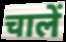
चालें